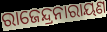
ରାଜେନ୍ଦ୍ରନାରାୟଣ